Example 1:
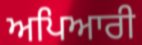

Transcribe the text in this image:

ਅਪਿਆਰੀ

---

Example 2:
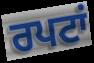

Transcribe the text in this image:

ਰਪਟਾਂ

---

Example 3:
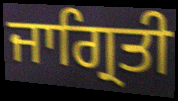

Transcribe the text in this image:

ਜਾਗ੍ਰਿਤੀ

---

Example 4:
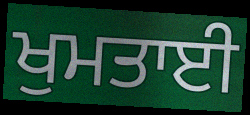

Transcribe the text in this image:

ਖੁਮਤਾਈ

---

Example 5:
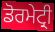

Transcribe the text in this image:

ਡੋਰਮੇਟ੍ਰੀ